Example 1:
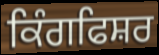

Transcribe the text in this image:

ਕਿੰਗਫਿਸ਼ਰ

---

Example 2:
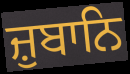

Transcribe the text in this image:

ਜ਼ੁਬਾਨਿ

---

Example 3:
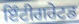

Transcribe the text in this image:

ਇੰਟੀਗਰੇਟਡ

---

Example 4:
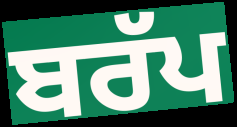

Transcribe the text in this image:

ਬਰੱਪ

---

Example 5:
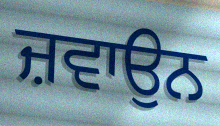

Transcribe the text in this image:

ਜ਼ਵਾਉਨ